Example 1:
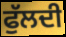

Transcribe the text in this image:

ਫੁੱਲਦੀ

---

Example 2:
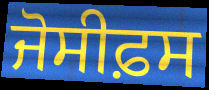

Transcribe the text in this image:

ਜੋਸੀਫ਼ਸ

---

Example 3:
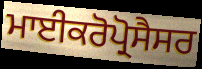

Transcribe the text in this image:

ਮਾਈਕਰੋਪ੍ਰੋਸੈਸਰ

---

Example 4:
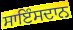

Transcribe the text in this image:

ਸਾਇੰਸਦਾਨ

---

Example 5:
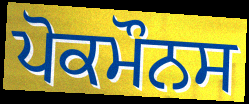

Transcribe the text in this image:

ਪੋਕਮੌਨਸ